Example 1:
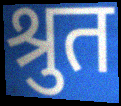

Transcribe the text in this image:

श्रुत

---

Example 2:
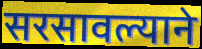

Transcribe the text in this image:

सरसावल्याने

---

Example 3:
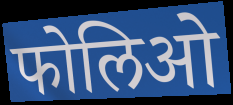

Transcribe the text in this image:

फोलिओ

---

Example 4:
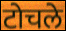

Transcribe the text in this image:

टोचले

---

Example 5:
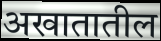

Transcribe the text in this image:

अखातातील